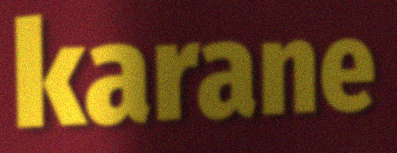
karane